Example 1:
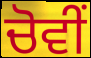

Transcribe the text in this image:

ਚੋਵੀਂ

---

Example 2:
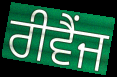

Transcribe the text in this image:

ਰੀਵੈਂਜ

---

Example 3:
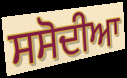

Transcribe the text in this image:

ਸਸੋਦੀਆ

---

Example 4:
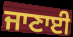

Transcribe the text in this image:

ਜਾਣਾਈ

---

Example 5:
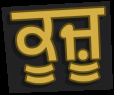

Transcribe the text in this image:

ਕੂਜ਼ੂ